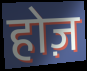
होज़